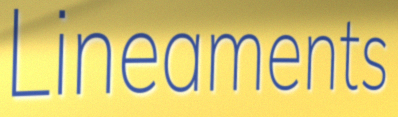
Lineaments